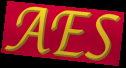
AES